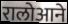
रालोआने